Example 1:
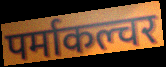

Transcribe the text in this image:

पर्माकल्चर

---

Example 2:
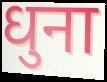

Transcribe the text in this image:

धुना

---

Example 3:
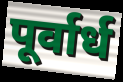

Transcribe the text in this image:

पूर्वार्ध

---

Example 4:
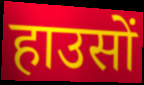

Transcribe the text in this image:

हाउसों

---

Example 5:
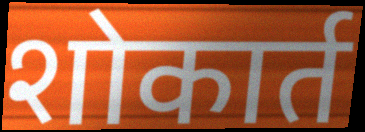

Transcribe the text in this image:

शोकार्त